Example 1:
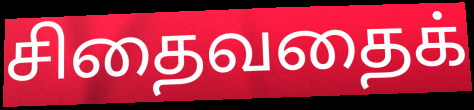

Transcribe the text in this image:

சிதைவதைக்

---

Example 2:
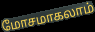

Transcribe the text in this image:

மோசமாகலாம்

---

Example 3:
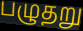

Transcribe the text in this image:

பழுதறு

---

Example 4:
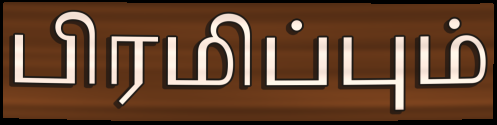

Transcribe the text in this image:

பிரமிப்பும்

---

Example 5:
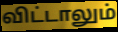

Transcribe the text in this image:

விட்டாலும்